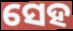
ସେହ